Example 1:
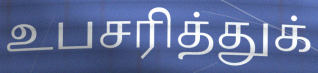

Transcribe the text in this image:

உபசரித்துக்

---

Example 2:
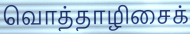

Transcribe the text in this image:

வொத்தாழிசைக்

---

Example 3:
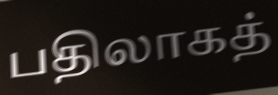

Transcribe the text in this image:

பதிலாகத்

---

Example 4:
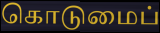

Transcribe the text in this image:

கொடுமைப்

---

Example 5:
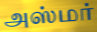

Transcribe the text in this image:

அஸ்மர்